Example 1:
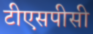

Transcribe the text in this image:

टीएसपीसी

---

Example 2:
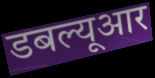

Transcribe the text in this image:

डबल्यूआर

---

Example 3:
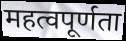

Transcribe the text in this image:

महत्वपूर्णता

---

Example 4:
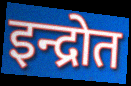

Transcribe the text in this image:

इन्द्रोत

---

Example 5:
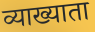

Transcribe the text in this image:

व्याख्याता